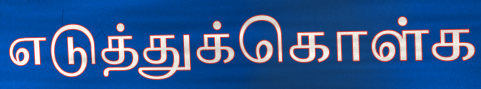
எடுத்துக்கொள்க